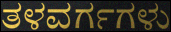
ತಳವರ್ಗಗಳು